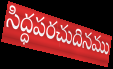
సిద్ధపరచుదినము